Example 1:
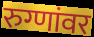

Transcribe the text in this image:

रुग्णांवर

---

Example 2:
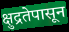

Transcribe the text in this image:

क्षुद्रतेपासून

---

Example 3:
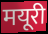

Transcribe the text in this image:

मयूरी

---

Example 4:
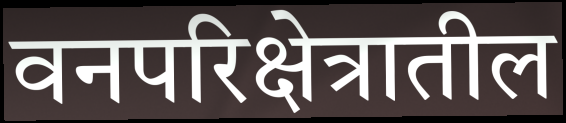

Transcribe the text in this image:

वनपरिक्षेत्रातील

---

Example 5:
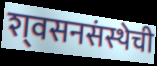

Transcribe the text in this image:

श्वसनसंस्थेची